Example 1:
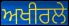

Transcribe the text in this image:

ਅਖੀਰਲੇ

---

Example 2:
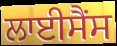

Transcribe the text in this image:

ਲਾਈਸੈਂਸ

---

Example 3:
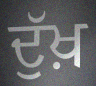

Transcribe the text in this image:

ਦੁੱਖ਼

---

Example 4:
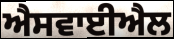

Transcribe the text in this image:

ਐਸਵਾਈਐਲ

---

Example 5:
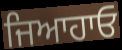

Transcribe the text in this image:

ਜਿਆਹਾਓ